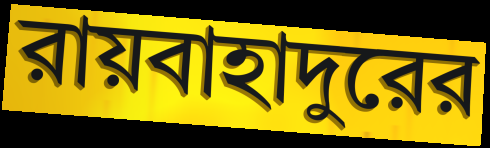
রায়বাহাদুরের